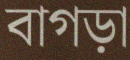
বাগড়া